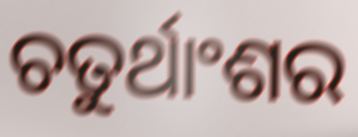
ଚତୁର୍ଥାଂଶର